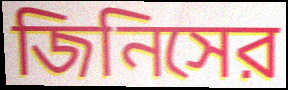
জিনিসের